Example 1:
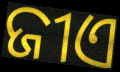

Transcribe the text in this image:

ଜୀଏ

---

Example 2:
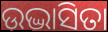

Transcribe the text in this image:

ଉଦ୍ଭାସିତା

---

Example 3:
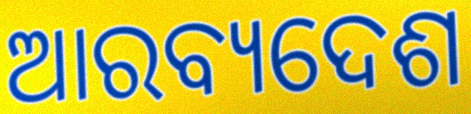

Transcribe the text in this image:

ଆରବ୍ୟଦେଶ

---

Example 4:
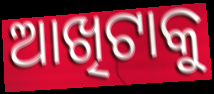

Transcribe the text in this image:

ଆଖିଟାକୁ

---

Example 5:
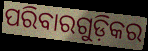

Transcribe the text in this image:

ପରିବାରଗୁଡ଼ିକର